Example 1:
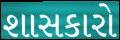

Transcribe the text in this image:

શાસકારો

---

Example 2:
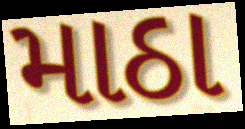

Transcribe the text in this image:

માઠા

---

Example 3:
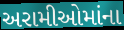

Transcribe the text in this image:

અરામીઓમાંના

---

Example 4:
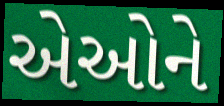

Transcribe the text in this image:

એઓને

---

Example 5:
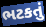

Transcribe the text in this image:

ભટકતું